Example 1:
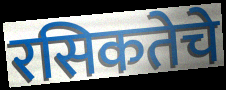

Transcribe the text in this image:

रसिकतेचे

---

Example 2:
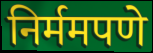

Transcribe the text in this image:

निर्ममपणे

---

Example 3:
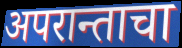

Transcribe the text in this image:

अपरान्ताचा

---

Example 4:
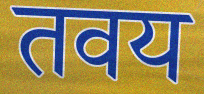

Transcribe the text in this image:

तवय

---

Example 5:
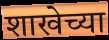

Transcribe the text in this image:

शाखेच्या